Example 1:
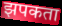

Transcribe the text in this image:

झपकता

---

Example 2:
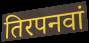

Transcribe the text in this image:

तिरपनवां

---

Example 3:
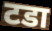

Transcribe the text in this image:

टडा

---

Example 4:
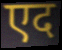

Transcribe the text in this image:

एद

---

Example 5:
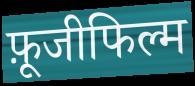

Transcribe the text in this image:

फ़ूजीफिल्म